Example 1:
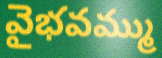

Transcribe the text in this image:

వైభవమ్ము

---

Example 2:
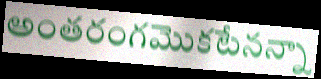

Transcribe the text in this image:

అంతరంగమొకటేనన్నా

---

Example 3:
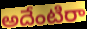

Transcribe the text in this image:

అదేంటిరా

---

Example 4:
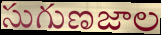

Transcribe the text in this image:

సుగుణజాల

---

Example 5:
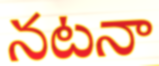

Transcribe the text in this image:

నటనా